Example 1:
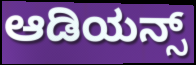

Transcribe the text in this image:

ಆಡಿಯನ್ಸ್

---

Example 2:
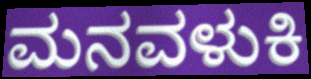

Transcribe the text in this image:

ಮನವಳುಕಿ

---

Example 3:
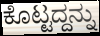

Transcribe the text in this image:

ಕೊಟ್ಟದ್ದನ್ನು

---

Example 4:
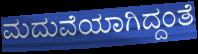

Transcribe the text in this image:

ಮದುವೆಯಾಗಿದ್ದಂತೆ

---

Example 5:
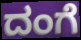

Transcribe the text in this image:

ದಂಗೆ